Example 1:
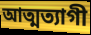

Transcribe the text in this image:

আত্মত্যাগী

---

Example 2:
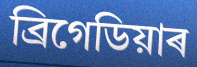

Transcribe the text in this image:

ব্ৰিগেডিয়াৰ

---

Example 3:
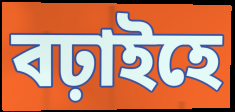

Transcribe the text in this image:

বঢ়াইহে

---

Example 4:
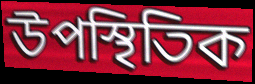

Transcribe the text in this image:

উপস্থিতিক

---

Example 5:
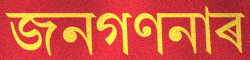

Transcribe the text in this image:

জনগণনাৰ